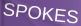
SPOKES